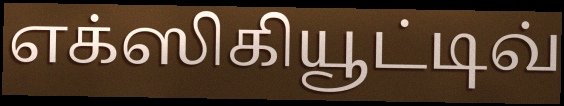
எக்ஸிகியூட்டிவ்